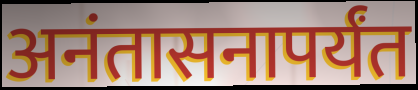
अनंतासनापर्यंत